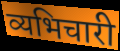
व्यभिचारी